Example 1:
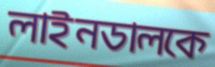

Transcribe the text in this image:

লাইনডালকে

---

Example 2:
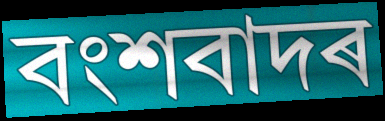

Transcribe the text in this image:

বংশবাদৰ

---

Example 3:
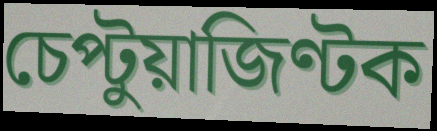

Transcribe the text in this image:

চেপ্টুয়াজিণ্টক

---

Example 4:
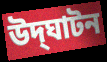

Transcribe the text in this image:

উদ্‌ঘাটন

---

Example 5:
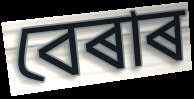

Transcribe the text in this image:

বেৰাৰ